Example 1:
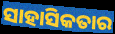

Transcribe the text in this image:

ସାହାସିକତାର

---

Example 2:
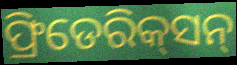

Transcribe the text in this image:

ଫ୍ରିଡେରିକ୍‌ସନ୍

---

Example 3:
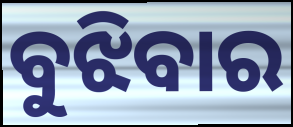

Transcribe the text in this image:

ବୁଝିବାର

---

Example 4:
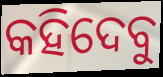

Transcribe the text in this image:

କହିଦେବୁ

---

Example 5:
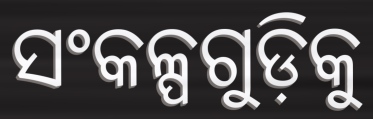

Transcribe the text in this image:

ସଂକଳ୍ପଗୁଡ଼ିକୁ